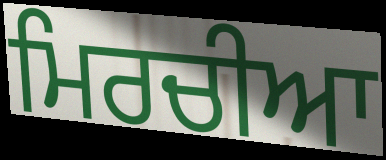
ਮਿਰਚੀਆ